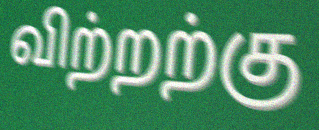
விற்றற்கு